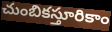
చుంబికస్తూరికాం